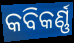
କବିକର୍ଣ୍ଣ